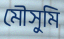
মৌসুমি